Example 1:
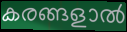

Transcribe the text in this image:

കരങ്ങളാൽ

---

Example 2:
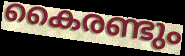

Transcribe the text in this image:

കൈരണ്ടും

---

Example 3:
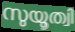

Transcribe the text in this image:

സുയൂത്വി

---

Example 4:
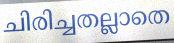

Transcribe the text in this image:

ചിരിച്ചതല്ലാതെ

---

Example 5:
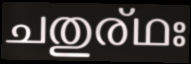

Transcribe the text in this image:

ചതുര്ഥഃ